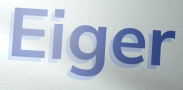
Eiger